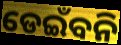
ଡେଇଁବନି